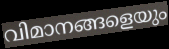
വിമാനങ്ങളെയും